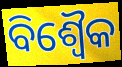
ବିଶ୍ୱୈକ